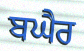
ਬਘੈਰ